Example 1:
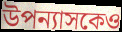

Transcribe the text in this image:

উপন্যাসকেও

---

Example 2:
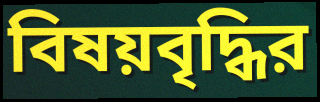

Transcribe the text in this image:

বিষয়বৃদ্ধির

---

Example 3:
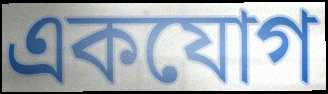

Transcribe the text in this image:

একযোগ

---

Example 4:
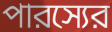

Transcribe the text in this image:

পারস্যের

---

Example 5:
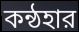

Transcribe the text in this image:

কন্ঠহার